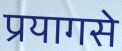
प्रयागसे